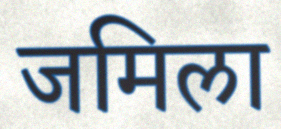
जमिला